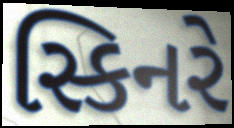
સ્કિનરે